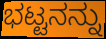
ಭಟ್ಟನನ್ನು